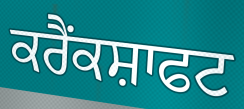
ਕਰੈਂਕਸ਼ਾਫਟ